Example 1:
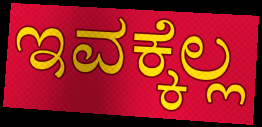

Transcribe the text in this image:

ಇವಕ್ಕೆಲ್ಲ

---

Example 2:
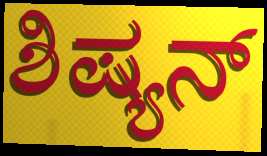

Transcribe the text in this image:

ಶಿಷ್ಯನ್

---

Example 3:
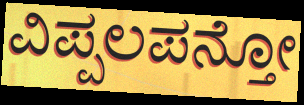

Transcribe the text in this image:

ವಿಪ್ಪಲಪನ್ತೋ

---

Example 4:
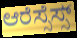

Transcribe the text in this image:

ಆರೆಸ್ಸೆಸ್ಸ್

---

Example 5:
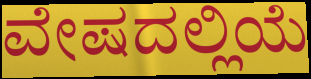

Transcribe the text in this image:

ವೇಷದಲ್ಲಿಯೆ